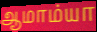
ஆமாம்யா